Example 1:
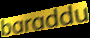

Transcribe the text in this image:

baraddu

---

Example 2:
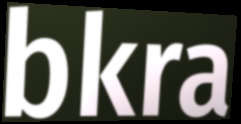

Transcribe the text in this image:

bkra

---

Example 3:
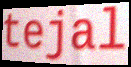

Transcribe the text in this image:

tejal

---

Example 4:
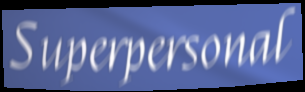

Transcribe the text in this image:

Superpersonal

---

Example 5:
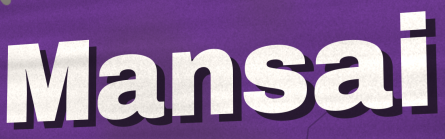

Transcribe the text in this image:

Mansai